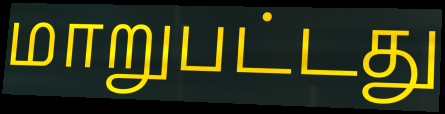
மாறுபட்டது